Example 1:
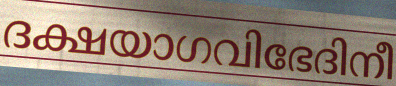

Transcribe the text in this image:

ദക്ഷയാഗവിഭേദിനീ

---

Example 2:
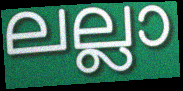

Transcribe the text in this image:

ലല്ലാ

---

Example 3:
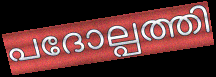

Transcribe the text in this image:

പദോല്പത്തി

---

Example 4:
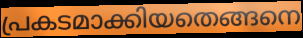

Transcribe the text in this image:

പ്രകടമാക്കിയതെങ്ങനെ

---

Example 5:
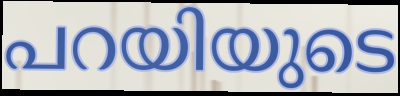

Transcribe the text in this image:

പറയിയുടെ